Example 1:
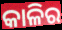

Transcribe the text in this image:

କାଳିର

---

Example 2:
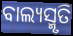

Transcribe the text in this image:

ବାଲ୍ୟସ୍ମୃତି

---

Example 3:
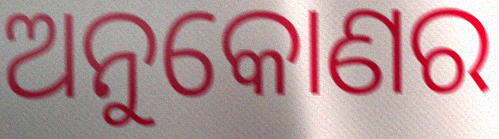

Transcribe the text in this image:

ଅନୁକୋଣର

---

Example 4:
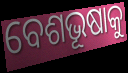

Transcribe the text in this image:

ବେଶଭୂଷାକୁ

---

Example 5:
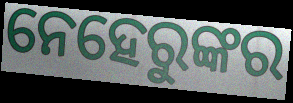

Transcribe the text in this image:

ନେହେରୁଙ୍କର